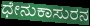
ಧೇನುಕಾಸುರನ